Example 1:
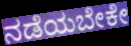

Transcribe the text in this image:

ನಡೆಯಬೇಕೇ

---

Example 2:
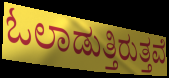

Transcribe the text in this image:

ಓಲಾಡುತ್ತಿರುತ್ತವೆ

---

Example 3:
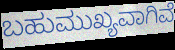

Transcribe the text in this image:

ಬಹುಮುಖ್ಯವಾಗಿವೆ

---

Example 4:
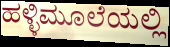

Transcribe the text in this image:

ಹಳ್ಳಿಮೂಲೆಯಲ್ಲಿ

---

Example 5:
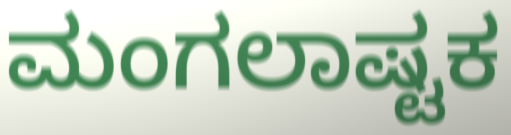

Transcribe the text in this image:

ಮಂಗಲಾಷ್ಟಕ